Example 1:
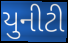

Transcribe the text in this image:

યુનીટી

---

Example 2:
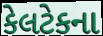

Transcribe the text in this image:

કેલટેકના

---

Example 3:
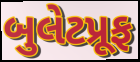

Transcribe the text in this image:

બુલેટપ્રૂફ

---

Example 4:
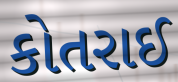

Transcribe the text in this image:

કોતરાઈ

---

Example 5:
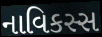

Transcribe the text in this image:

નાવિકસ્સ